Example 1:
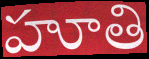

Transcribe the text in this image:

హూతి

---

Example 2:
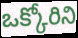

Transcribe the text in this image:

ఒక్కోరిని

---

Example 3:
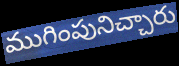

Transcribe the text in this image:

ముగింపునిచ్చారు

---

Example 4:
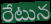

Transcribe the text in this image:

రేటున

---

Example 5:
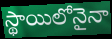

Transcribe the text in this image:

స్థాయిలోనైనా